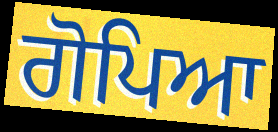
ਗੋਪਿਆ